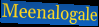
Meenalogale